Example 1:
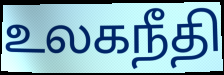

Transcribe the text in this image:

உலகநீதி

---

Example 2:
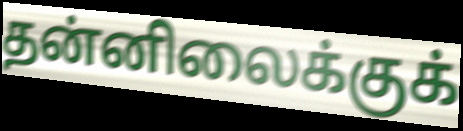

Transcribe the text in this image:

தன்னிலைக்குக்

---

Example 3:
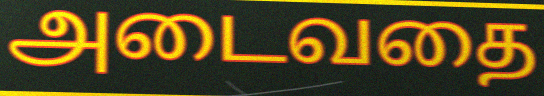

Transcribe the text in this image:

அடைவதை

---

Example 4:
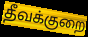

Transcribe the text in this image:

தீவக்குறை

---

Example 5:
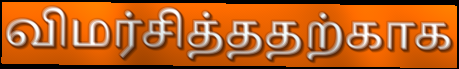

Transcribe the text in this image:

விமர்சித்ததற்காக